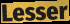
Lesser